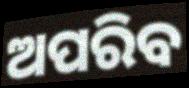
ଅପରିବ